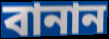
বানান